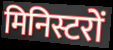
मिनिस्टरों